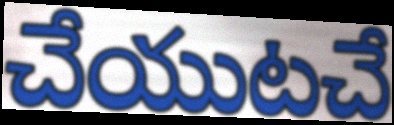
చేయుటచే